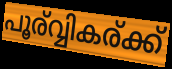
പൂര്വ്വികര്ക്ക്